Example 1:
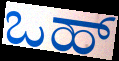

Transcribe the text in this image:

ಒಹ್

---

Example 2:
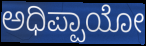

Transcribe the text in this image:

ಅಧಿಪ್ಪಾಯೋ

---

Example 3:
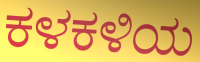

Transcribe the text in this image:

ಕಳಕಳಿಯ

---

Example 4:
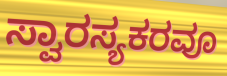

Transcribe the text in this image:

ಸ್ವಾರಸ್ಯಕರವೂ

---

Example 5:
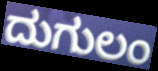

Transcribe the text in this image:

ದುಗುಲಂ